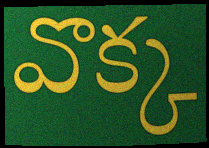
వొక్క